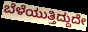
ಬೆಳೆಯುತ್ತಿದ್ದುದೇ